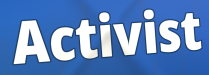
Activist